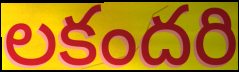
లకందరి